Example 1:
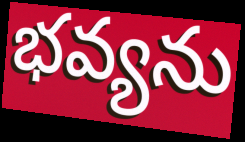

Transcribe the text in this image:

భవ్యను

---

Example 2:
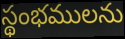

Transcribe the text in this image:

స్థంభములను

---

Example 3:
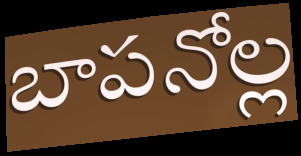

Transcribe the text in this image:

బాపనోల్ల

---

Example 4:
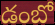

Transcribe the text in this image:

డంబో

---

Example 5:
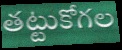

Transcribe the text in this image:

తట్టుకోగల